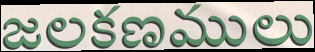
జలకణములు